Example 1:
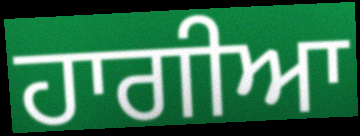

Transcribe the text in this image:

ਹਾਗੀਆ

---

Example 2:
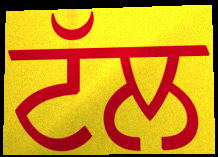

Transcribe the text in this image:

ਟੱਲ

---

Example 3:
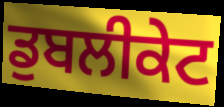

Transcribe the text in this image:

ਡੁਬਲੀਕੇਟ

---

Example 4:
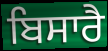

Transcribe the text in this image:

ਬਿਸਾਰੈ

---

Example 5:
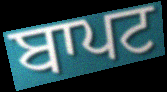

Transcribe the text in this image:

ਬਾਪਟ